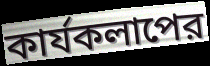
কার্যকলাপের